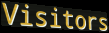
Visitors